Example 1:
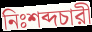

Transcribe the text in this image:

নিঃশব্দচারী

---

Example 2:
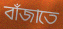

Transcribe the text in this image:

বাঁজাতে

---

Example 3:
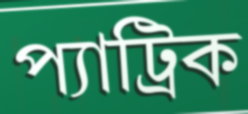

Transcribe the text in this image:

প্যাট্রিক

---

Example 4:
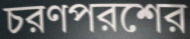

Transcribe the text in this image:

চরণপরশের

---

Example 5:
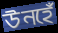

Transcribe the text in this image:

উনহেঁ